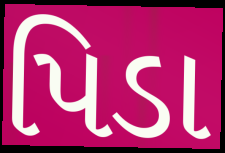
પિડા